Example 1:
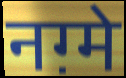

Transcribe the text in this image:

नग़्मे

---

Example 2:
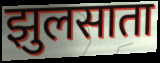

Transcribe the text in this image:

झुलसाता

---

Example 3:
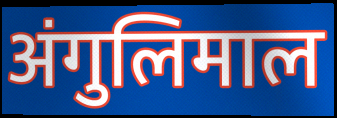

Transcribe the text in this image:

अंगुलिमाल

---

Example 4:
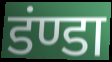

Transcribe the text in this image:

डंण्डा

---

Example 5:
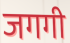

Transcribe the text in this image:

जगगी